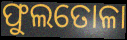
ଫୁଲତୋଳା